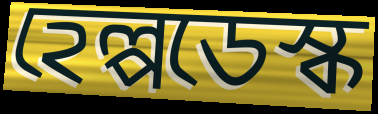
হেল্পডেস্ক